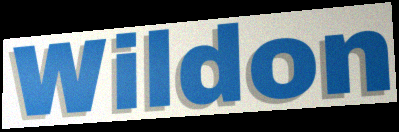
Wildon